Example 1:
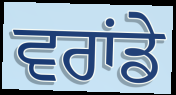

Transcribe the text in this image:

ਵਰਾਂਡੇ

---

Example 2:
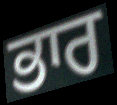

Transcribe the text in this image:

ਭਾਰ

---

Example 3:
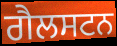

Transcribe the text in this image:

ਗੈਲਸਟਨ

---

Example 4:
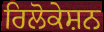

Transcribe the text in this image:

ਰਿਲੋਕੇਸ਼ਨ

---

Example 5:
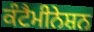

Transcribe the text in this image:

ਕੰਟੈਮੀਨੇਸ਼ਨ